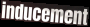
inducement